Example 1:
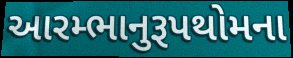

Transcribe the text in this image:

આરમ્ભાનુરૂપથોમના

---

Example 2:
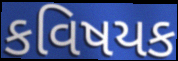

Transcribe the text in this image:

કવિષયક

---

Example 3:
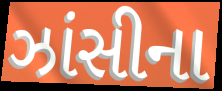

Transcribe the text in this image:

ઝાંસીના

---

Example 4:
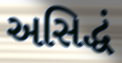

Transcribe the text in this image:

અસિદ્ધં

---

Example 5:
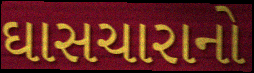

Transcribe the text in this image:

ઘાસચારાનો